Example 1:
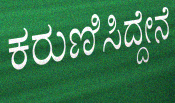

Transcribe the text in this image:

ಕರುಣಿಸಿದ್ದೇನೆ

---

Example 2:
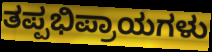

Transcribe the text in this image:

ತಪ್ಪಭಿಪ್ರಾಯಗಳು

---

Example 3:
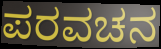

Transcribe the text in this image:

ಪರವಚನ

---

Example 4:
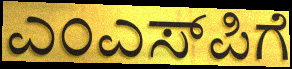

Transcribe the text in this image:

ಎಂಎಸ್‌ಪಿಗೆ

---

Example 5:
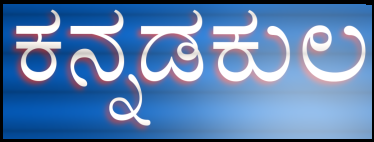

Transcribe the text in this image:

ಕನ್ನಡಕುಲ